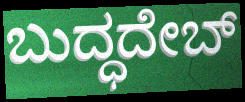
ಬುದ್ಧದೇಬ್